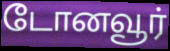
டோனவூர்